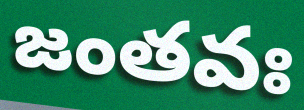
జంతవః